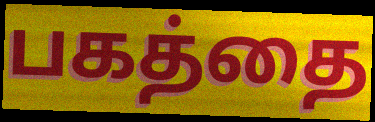
பகத்தை